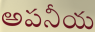
అపనీయ